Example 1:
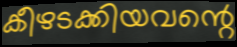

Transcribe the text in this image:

കീഴടക്കിയവന്റെ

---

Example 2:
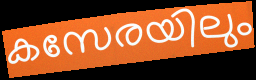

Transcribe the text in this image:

കസേരയിലും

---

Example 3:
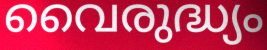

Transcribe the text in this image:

വൈരുദ്ധ്യം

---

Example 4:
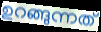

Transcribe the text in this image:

ഉറങ്ങുന്നത്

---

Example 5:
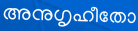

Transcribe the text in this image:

അനുഗൃഹീതോ